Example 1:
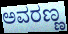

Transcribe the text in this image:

ಅವರಣ್ಣ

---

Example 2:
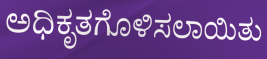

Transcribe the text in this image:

ಅಧಿಕೃತಗೊಳಿಸಲಾಯಿತು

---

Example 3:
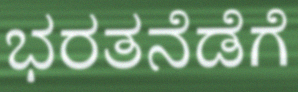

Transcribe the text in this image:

ಭರತನೆಡೆಗೆ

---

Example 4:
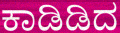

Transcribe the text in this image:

ಕಾಡಿಡಿದ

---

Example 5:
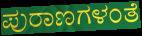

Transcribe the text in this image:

ಪುರಾಣಗಳಂತೆ